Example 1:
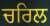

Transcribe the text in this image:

ਚਰਿਲ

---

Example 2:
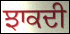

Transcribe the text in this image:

ਝਾਕਦੀ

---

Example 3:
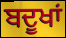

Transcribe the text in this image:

ਬਦੂਖਾਂ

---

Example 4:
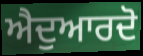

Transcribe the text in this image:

ਐਦੁਆਰਦੋ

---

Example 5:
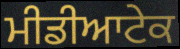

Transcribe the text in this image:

ਮੀਡੀਆਟੇਕ